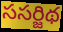
ససర్జిథ